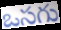
ఒసగు